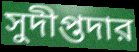
সুদীপ্তদার